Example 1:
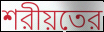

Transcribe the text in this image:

শরীয়তের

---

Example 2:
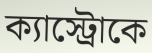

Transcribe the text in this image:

ক্যাস্ট্রোকে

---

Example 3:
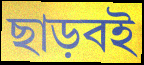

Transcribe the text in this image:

ছাড়বই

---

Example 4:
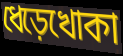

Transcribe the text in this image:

ধেড়েখোকা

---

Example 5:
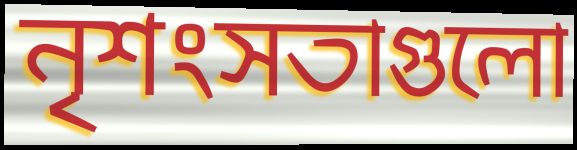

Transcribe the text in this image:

নৃশংসতাগুলো